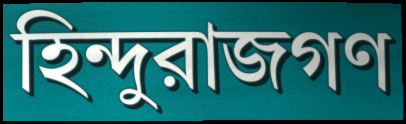
হিন্দুরাজগণ